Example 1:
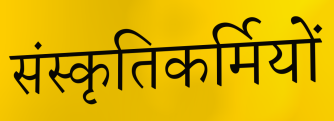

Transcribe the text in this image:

संस्कृतिकर्मियों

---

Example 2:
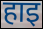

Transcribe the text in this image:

हाइ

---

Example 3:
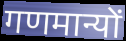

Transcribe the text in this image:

गणमान्यों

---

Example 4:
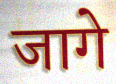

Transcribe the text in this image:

जागे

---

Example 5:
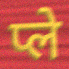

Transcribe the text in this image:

प्ले